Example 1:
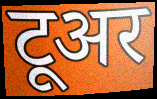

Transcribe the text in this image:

टूअर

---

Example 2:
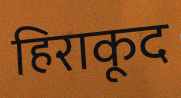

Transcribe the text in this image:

हिराकूद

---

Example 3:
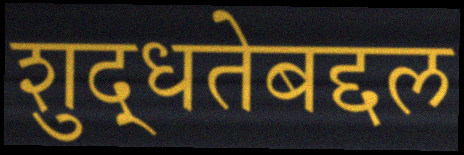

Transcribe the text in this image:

शुद्धतेबद्दल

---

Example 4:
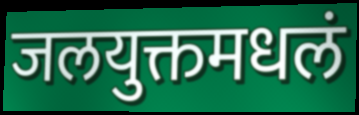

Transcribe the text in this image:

जलयुक्तमधलं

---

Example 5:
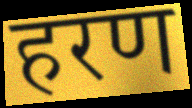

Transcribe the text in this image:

हरण